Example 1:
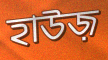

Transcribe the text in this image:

হাউজ়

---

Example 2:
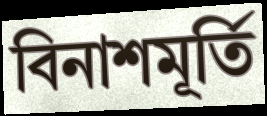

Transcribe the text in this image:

বিনাশমূর্তি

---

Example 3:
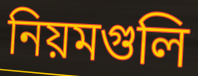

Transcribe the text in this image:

নিয়মগুলি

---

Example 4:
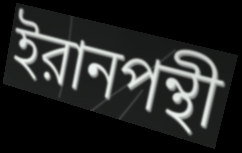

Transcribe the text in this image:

ইরানপন্থী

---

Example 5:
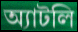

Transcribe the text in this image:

অ্যাটলি